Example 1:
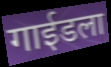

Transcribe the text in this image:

गाईडला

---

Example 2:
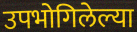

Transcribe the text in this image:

उपभोगिलेल्या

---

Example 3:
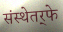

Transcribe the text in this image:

संस्थेतर्फे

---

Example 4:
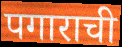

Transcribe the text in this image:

पगाराची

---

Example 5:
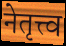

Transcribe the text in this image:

नेतृत्त्व